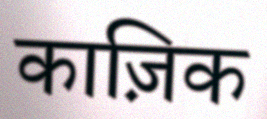
काज़िक